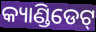
କ୍ୟାଣ୍ଡିଡେଟ୍